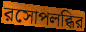
রসোপলব্ধির